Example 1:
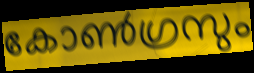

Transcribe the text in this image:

കോൺഗ്രസും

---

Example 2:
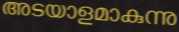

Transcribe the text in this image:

അടയാളമാകുന്നു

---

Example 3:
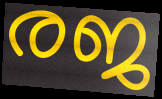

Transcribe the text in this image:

രജ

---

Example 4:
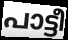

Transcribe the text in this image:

പാട്ടീ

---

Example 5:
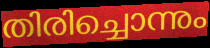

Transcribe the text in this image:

തിരിച്ചൊന്നും